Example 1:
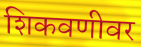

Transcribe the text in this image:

शिकवणीवर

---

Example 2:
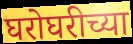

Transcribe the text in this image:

घरोघरीच्या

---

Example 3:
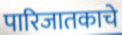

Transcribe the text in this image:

पारिजातकाचे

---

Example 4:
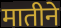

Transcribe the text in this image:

मातीने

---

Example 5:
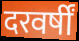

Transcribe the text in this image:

दरवर्षीं